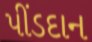
પીંડદાન